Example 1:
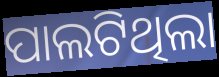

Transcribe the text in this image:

ପାଲଟିଥିଲା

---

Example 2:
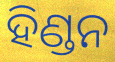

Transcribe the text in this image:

ହିଣ୍ଡନ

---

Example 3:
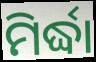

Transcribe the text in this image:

ମିର୍ଦ୍ଧା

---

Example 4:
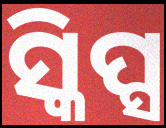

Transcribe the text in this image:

ସ୍କିପ୍ସ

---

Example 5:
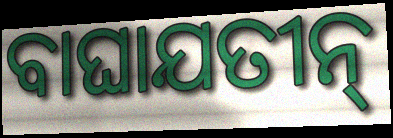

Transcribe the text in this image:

ବାଘାଯତୀନ୍